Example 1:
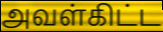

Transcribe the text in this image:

அவள்கிட்ட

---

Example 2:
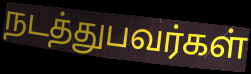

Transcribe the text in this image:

நடத்துபவர்கள்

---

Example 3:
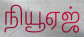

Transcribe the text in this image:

நியூஏஜ்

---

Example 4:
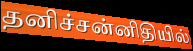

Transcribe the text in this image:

தனிச்சன்னிதியில்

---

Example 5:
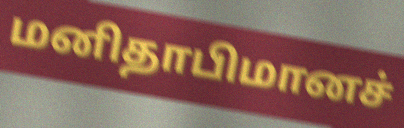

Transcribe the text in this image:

மனிதாபிமானச்